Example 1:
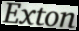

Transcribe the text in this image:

Exton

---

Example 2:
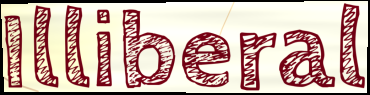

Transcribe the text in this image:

Illiberal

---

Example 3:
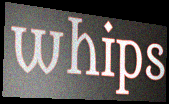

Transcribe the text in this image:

whips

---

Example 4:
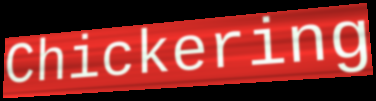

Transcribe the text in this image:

Chickering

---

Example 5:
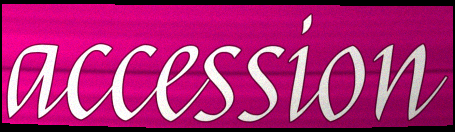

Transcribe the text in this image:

accession